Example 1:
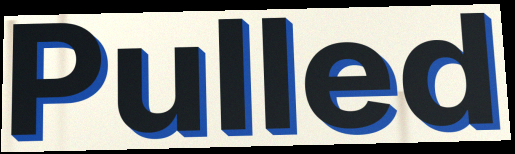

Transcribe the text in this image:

Pulled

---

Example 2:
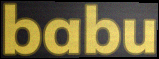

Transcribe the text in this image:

babu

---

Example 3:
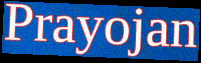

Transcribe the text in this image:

Prayojan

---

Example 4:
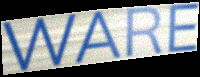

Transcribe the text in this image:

WARE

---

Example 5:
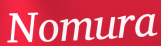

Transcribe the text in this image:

Nomura